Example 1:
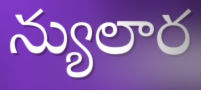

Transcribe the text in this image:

న్యులార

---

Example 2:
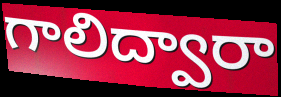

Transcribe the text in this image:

గాలిద్వారా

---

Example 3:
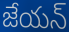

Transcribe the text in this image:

జేయన్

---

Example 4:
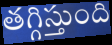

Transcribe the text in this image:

తగ్గిస్తుంది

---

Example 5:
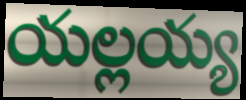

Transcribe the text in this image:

యల్లయ్య